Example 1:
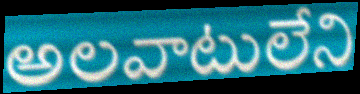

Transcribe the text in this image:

అలవాటులేని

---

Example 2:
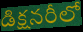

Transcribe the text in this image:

డిక్షనరీలో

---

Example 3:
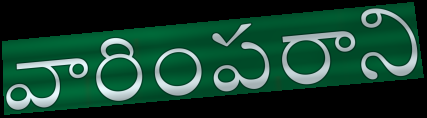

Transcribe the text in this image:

వారింపరాని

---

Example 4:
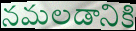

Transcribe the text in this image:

నమలడానికి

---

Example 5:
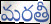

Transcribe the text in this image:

మరతీ